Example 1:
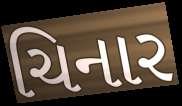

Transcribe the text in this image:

ચિનાર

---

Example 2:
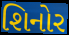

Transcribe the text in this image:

શિનોર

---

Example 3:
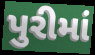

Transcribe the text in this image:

પુરીમાં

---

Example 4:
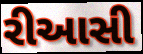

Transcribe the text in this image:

રીઆસી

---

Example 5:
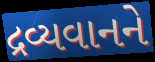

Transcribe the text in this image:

દ્રવ્યવાનને